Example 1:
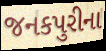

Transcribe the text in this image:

જનકપુરીના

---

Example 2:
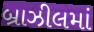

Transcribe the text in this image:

બ્રાઝીલમાં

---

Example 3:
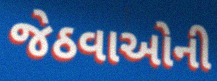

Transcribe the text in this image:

જેઠવાઓની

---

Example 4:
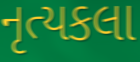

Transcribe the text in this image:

નૃત્યકલા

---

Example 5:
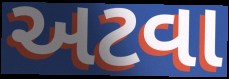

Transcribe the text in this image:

અટવા